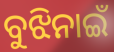
ବୁଝିନାଇଁ